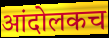
आंदोलकच